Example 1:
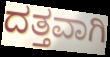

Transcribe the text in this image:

ದತ್ತವಾಗಿ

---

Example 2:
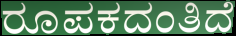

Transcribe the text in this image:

ರೂಪಕದಂತಿದೆ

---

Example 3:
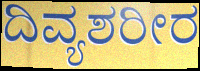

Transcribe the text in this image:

ದಿವ್ಯಶರೀರ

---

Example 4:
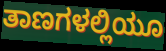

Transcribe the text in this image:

ತಾಣಗಳಲ್ಲಿಯೂ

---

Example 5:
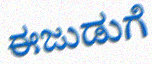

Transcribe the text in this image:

ಈಜುಡುಗೆ